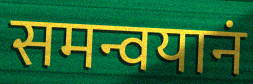
समन्वयानं